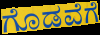
ಗೊಡವೆಗೆ